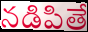
నడిపితే